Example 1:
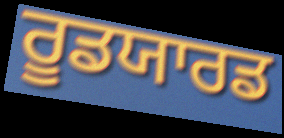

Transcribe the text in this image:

ਰੂਡਯਾਰਡ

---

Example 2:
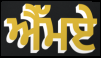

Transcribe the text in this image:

ਐੱਮਏ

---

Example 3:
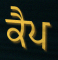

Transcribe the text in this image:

ਕੈਪ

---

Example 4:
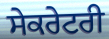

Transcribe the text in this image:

ਸੇਕਰੇਟਰੀ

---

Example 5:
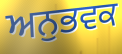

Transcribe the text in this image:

ਅਨੁਭਵਕ